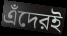
এঁদেরই